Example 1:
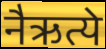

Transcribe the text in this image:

नैऋत्ये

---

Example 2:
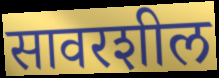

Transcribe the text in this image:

सावरशील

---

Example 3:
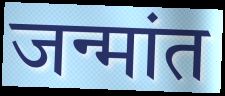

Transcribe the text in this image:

जन्मांत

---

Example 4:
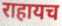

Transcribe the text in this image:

राहायच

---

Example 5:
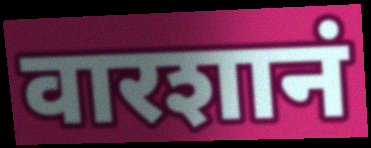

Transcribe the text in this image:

वारशानं